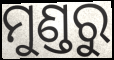
ମୁଣ୍ଡରୁ